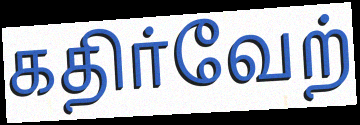
கதிர்வேற்